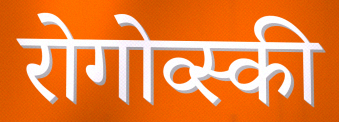
रोगोव्स्की